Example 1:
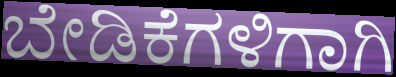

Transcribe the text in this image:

ಬೇಡಿಕೆಗಳಿಗಾಗಿ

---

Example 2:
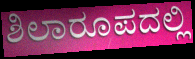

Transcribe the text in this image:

ಶಿಲಾರೂಪದಲ್ಲಿ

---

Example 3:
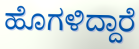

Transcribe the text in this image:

ಹೊಗಳಿದ್ದಾರೆ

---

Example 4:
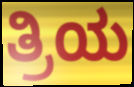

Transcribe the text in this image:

ತ್ರಿಯ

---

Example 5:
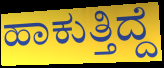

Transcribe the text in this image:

ಹಾಕುತ್ತಿದ್ದೆ